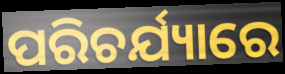
ପରିଚର୍ଯ୍ୟାରେ